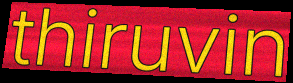
thiruvin